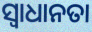
ସ୍ୱାଧାନତା